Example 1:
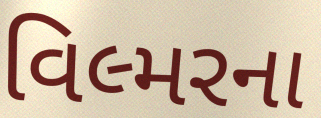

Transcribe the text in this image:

વિલ્મરના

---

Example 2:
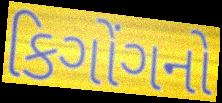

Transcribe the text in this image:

કિગોંગનો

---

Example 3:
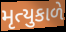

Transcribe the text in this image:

મૃત્યુકાળે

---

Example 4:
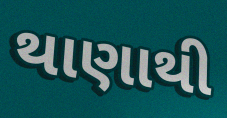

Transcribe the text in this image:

થાણાથી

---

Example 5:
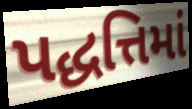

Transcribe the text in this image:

પદ્ધત્તિમાં